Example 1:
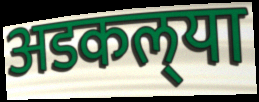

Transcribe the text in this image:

अडकल्या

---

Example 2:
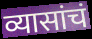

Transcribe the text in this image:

व्यासांचं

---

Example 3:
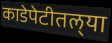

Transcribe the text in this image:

काडेपेटीतल्या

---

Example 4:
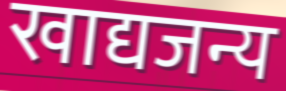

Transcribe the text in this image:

खाद्यजन्य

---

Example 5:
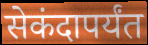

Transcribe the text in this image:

सेकंदापर्यंत